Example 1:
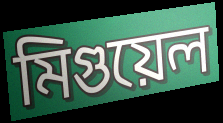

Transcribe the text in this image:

মিগুয়েল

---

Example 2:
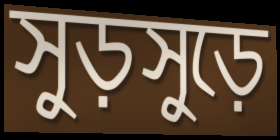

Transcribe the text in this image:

সুড়সুড়ে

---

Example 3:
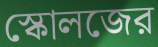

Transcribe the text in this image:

স্কোলজের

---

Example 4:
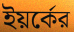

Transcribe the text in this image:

ইয়র্কের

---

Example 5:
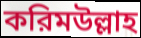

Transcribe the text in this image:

করিমউল্লাহ